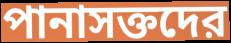
পানাসক্তদের